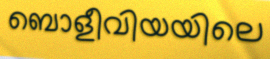
ബൊളീവിയയിലെ